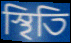
স্থিতি